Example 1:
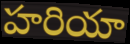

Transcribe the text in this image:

హరియా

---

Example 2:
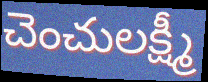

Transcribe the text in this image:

చెంచులక్ష్మీ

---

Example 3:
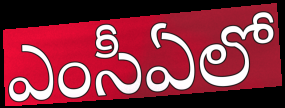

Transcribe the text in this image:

ఎంసీఏలో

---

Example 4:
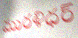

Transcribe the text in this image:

మురళిధర్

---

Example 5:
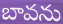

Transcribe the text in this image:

బావను